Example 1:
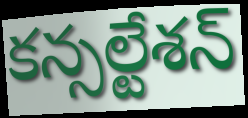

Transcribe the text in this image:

కన్సల్టేశన్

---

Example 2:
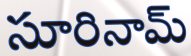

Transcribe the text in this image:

సూరినామ్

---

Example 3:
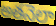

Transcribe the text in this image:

అతనెలా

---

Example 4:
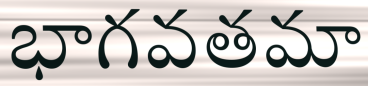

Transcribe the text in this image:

భాగవతమా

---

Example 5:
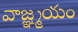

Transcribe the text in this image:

వాజ్ఞ్మయం